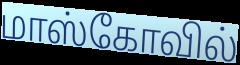
மாஸ்கோவில்